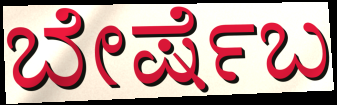
ಬೇರ್ಷೆಬ